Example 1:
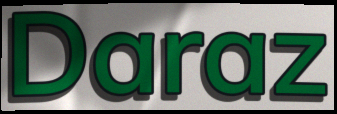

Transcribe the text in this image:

Daraz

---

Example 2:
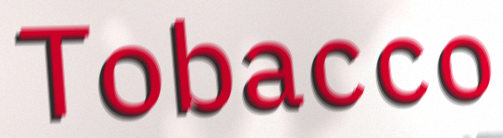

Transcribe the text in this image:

Tobacco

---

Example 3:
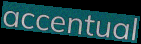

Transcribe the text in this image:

accentual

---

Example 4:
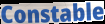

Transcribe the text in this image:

Constable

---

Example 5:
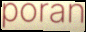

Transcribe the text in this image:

poran